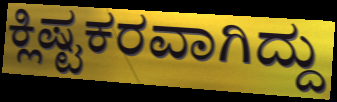
ಕ್ಲಿಷ್ಟಕರವಾಗಿದ್ದು